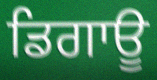
ਡਿਗਾਊ